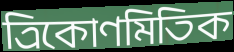
ত্ৰিকোণমিতিক